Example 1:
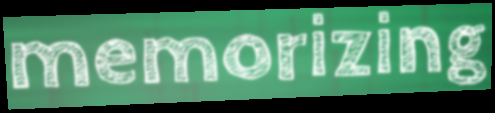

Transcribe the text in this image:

memorizing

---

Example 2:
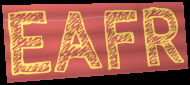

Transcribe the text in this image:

EAFR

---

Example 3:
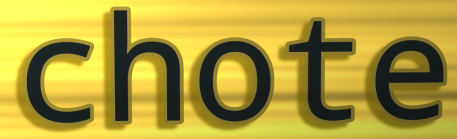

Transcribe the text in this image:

chote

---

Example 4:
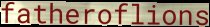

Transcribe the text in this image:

fatheroflions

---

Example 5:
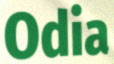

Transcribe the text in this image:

Odia